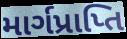
માર્ગપ્રાપ્તિ